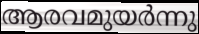
ആരവമുയർന്നു